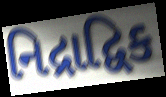
નિદ્રાદ્વિક